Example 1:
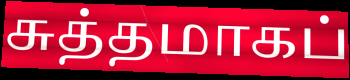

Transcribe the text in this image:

சுத்தமாகப்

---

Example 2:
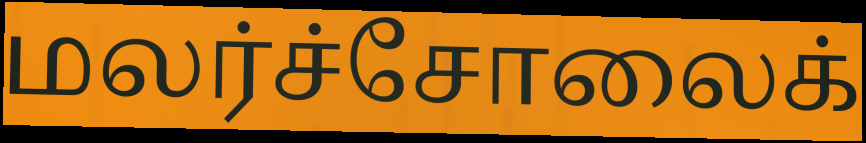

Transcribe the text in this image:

மலர்ச்சோலைக்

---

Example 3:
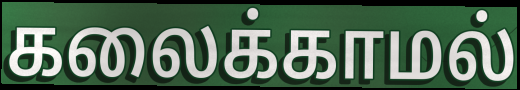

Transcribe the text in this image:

கலைக்காமல்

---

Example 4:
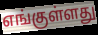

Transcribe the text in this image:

எங்குள்ளது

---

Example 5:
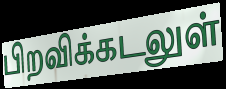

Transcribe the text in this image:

பிறவிக்கடலுள்